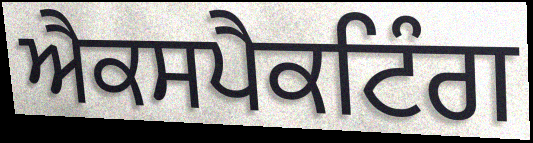
ਐਕਸਪੈਕਟਿੰਗ